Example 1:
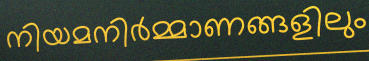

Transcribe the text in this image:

നിയമനിർമ്മാണങ്ങളിലും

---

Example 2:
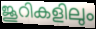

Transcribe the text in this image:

ജൂറികളിലും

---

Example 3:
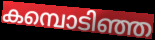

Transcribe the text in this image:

കമ്പൊടിഞ്ഞ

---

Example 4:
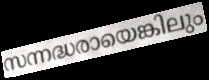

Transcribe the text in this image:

സന്നദ്ധരായെങ്കിലും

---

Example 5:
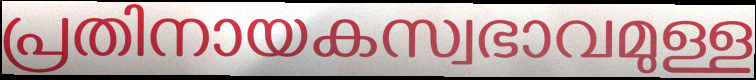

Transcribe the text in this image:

പ്രതിനായകസ്വഭാവമുള്ള